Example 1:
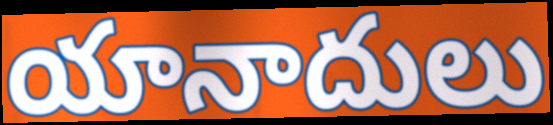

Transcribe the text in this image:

యానాదులు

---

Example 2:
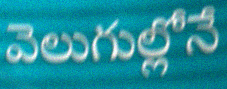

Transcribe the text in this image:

వెలుగుల్లోనే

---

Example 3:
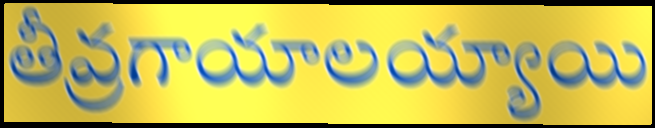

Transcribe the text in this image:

తీవ్రగాయాలయ్యాయి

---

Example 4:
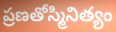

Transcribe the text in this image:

ప్రణతోస్మినిత్యం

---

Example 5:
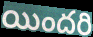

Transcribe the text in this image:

యిందరి